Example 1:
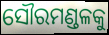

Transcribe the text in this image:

ସୌରମଣ୍ଡଳକୁ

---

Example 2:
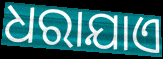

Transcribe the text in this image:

ଧରାଯାଏ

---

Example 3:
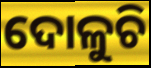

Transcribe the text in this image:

ଦୋଳୁଚି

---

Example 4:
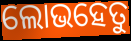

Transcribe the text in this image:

ଲୋଭହେତୁ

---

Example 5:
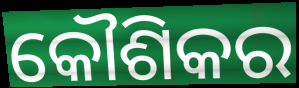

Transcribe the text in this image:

କୌଶିକର